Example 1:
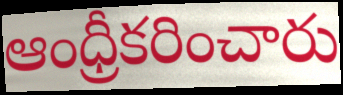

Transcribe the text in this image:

ఆంధ్రీకరించారు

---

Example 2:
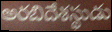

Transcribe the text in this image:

అరబిదేశస్థుడు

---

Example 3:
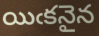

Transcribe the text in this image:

యిఁకనైన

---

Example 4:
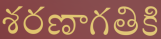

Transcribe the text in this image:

శరణాగతికి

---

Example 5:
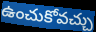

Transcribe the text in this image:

ఉంచుకోవచ్చు